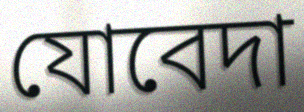
যোবেদা